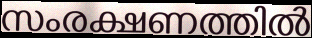
സംരക്ഷണത്തിൽ